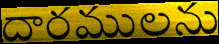
దారములను